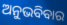
ଅନୁଭବିବାର